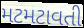
મટમટાવતી